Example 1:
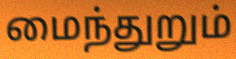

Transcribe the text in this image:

மைந்துறும்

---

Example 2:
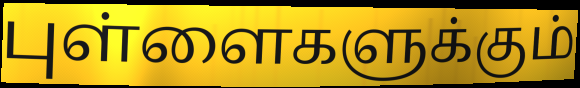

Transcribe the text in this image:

புள்ளைகளுக்கும்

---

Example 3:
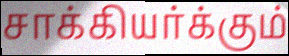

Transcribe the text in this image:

சாக்கியர்க்கும்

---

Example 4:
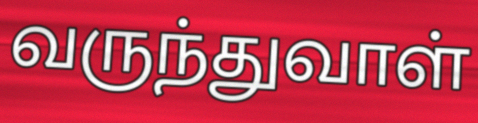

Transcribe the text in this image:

வருந்துவாள்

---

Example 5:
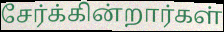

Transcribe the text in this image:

சேர்க்கின்றார்கள்